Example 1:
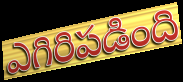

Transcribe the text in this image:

ఎగిరిపడింది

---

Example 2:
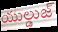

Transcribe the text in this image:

యుల్డుజ్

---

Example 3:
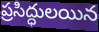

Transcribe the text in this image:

ప్రసిద్ధులయిన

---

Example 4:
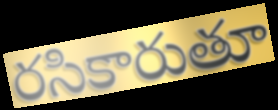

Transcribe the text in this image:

రసికారుతూ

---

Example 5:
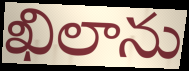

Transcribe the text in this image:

ఖిలాను